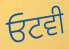
ਓਟਵੀ